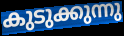
കുടുക്കുന്നു